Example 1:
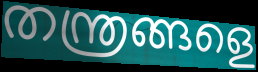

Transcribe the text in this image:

തന്ത്രങ്ങളെ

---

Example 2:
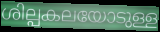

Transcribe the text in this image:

ശില്പകലയോടുള്ള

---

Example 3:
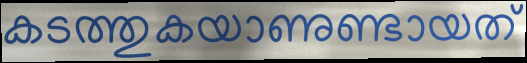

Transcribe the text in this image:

കടത്തുകയാണുണ്ടായത്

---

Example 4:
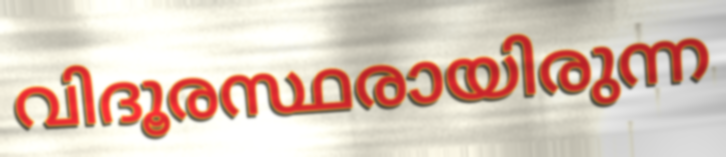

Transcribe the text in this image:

വിദൂരസ്ഥരായിരുന്ന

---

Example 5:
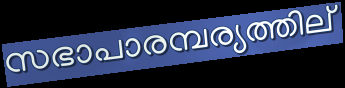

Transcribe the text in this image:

സഭാപാരമ്പര്യത്തില്